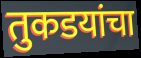
तुकडयांचा